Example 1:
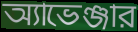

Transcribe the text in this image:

অ্যাভেঞ্জার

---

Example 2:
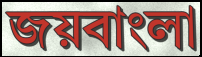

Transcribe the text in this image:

জয়বাংলা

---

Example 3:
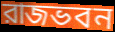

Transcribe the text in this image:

রাজভবন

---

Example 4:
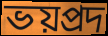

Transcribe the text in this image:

ভয়প্রদ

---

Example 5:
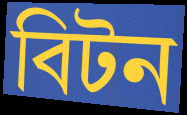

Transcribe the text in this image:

বিটন